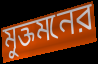
মুক্তমনের